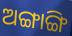
ଅଙ୍ଗାଙ୍ଗି